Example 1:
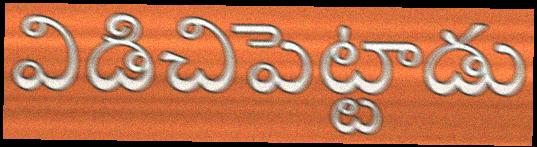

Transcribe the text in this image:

విడిచిపెట్టాడు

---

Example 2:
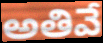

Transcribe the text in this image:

అతివే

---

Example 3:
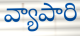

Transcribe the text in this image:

వ్యాపారి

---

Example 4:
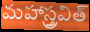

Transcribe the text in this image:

మహాస్త్రవిత్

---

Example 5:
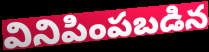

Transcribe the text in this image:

వినిపింపబడిన